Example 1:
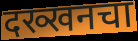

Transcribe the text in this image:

दख्खनचा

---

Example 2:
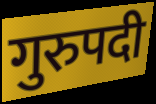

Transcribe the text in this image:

गुरुपदी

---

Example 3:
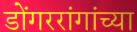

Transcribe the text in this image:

डोंगररांगांच्या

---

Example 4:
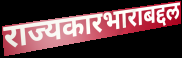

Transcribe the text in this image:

राज्यकारभाराबद्दल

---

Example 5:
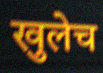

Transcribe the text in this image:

खुलेच